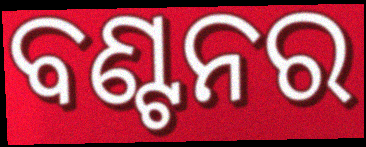
ବଣ୍ଟନର